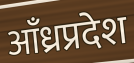
आँध्रप्रदेश